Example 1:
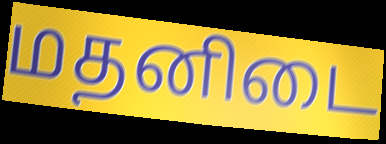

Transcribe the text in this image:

மதனிடை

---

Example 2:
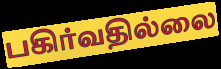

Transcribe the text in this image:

பகிர்வதில்லை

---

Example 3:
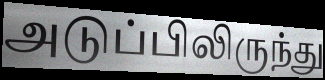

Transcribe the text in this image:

அடுப்பிலிருந்து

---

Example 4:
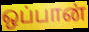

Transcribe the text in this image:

ஒப்பான்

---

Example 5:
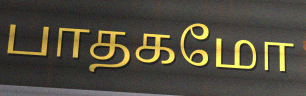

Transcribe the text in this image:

பாதகமோ